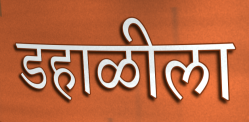
डहाळीला